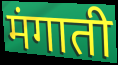
मंगाती